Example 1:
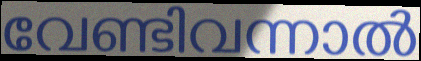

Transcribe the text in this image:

വേണ്ടിവന്നാൽ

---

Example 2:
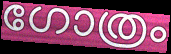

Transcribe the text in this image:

ഗോത്രം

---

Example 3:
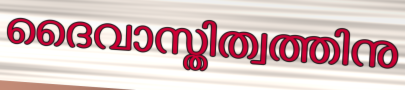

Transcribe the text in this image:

ദൈവാസ്തിത്വത്തിനു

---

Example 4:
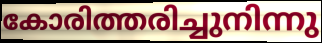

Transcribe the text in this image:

കോരിത്തരിച്ചുനിന്നു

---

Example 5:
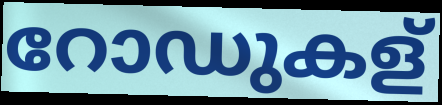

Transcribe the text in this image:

റോഡുകള്